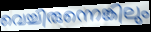
വെച്ചിരുന്നെങ്കിലും